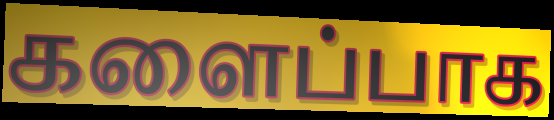
களைப்பாக